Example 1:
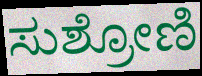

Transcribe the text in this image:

ಸುಶ್ರೋಣಿ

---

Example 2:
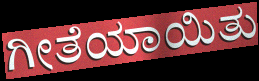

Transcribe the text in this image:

ಗೀತೆಯಾಯಿತು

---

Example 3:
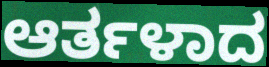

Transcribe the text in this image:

ಆರ್ತಳಾದ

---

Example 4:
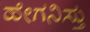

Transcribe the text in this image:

ಹೇಗನಿಸ್ತು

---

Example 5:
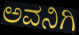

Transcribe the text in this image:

ಅವನಿಗಿ